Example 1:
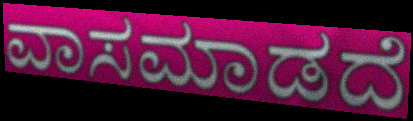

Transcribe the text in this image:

ವಾಸಮಾಡದೆ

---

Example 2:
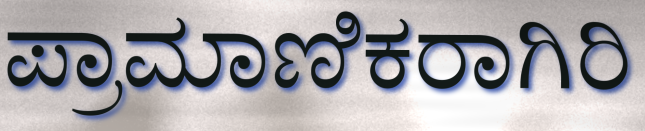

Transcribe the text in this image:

ಪ್ರಾಮಾಣಿಕರಾಗಿರಿ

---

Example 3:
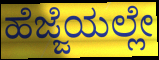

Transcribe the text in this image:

ಹೆಜ್ಜೆಯಲ್ಲೇ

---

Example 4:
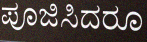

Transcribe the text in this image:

ಪೂಜಿಸಿದರೂ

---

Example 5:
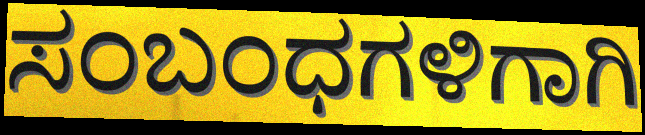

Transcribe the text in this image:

ಸಂಬಂಧಗಳಿಗಾಗಿ